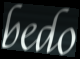
bedo